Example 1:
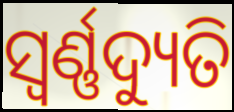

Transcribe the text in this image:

ସ୍ୱର୍ଣ୍ଣଦ୍ୟୁତି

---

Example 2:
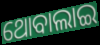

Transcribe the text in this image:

ଥୋବାଲାଇ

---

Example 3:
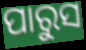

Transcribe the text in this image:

ପାରୁସ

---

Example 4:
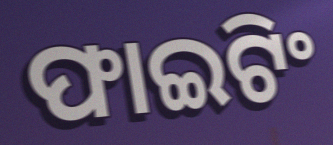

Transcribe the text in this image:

ଫାଇଟିଂ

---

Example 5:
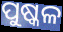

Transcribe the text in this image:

ପୁଷ୍କଳ